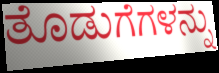
ತೊಡುಗೆಗಳನ್ನು